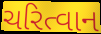
ચરિત્વાન